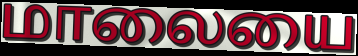
மாலையை